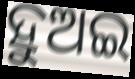
ହୁଅଇ